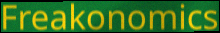
Freakonomics